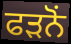
ਫੜਨੋਂ